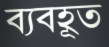
ব্যবহূত